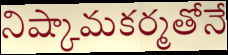
నిష్కామకర్మతోనే